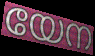
യേന